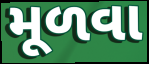
મૂળવા